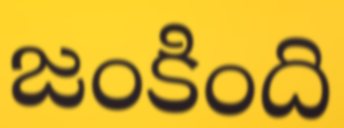
జంకింది